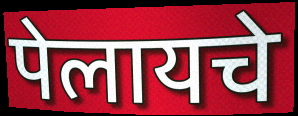
पेलायचे